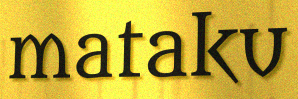
mataku